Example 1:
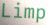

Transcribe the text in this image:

Limp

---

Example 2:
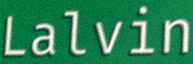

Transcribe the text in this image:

Lalvin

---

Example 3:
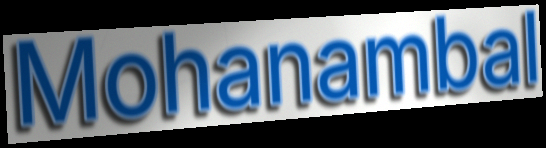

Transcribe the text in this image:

Mohanambal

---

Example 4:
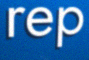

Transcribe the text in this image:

rep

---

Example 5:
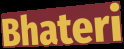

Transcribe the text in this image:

Bhateri